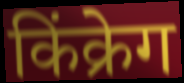
किंक्रेग